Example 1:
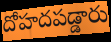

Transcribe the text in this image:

దోహదపడ్డారు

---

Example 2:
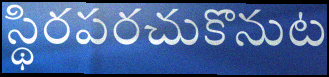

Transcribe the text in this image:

స్థిరపరచుకొనుట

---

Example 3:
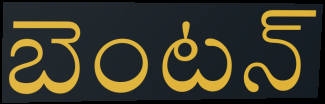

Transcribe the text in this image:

బెంటన్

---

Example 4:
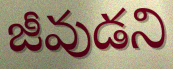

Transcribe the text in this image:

జీవుడని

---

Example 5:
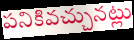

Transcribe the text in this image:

పనికివచ్చునట్లు